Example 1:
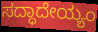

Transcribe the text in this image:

ಸದ್ಧಾದೇಯ್ಯಂ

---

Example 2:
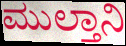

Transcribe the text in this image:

ಮುಲ್ತಾನಿ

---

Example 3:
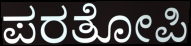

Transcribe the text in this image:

ಪರತೋಪಿ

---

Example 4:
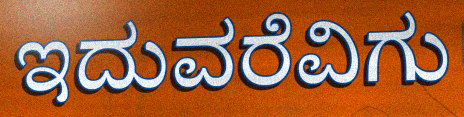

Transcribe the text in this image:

ಇದುವರೆವಿಗು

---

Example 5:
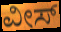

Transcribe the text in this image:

ವೀಸ್